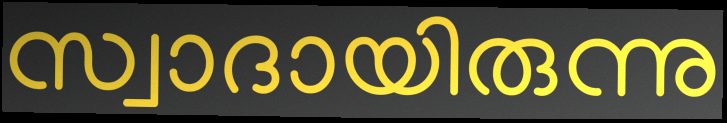
സ്വാദായിരുന്നു